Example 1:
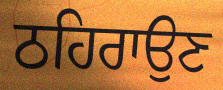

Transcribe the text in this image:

ਠਹਿਰਾਉਣ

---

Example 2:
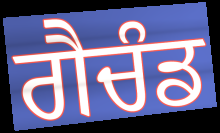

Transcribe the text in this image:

ਗੈਚੰਡ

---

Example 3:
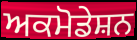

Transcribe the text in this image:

ਅਕਮੋਡੇਸ਼ਨ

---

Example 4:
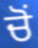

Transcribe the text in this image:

ਚੋਂ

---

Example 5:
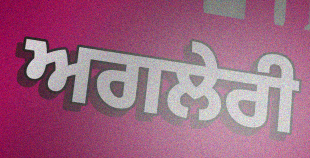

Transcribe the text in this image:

ਅਗਲੇਰੀ